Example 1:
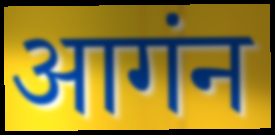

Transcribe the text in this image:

आगंन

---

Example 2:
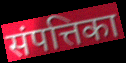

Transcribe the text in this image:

संपत्तिका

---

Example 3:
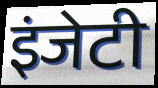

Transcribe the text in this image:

इंजेटी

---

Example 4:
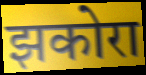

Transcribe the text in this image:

झकोरा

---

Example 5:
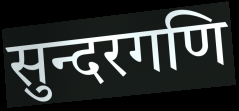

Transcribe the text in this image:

सुन्दरगणि